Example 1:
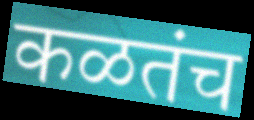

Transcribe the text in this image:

कळतंच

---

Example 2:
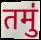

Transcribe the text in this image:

तमु॑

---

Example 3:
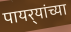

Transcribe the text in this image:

पायर्‍यांच्या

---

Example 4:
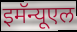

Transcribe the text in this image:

इमॅन्यूएल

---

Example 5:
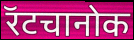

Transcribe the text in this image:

रॅटचानोक